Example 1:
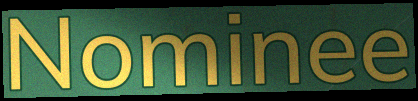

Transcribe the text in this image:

Nominee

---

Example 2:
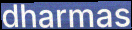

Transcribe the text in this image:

dharmas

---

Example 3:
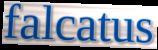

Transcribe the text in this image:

falcatus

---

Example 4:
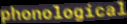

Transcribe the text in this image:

phonological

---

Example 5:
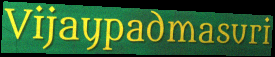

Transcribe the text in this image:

Vijaypadmasuri